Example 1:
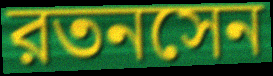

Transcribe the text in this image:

রতনসেন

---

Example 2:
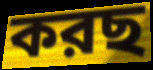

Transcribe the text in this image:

করছ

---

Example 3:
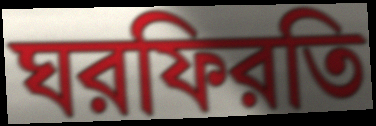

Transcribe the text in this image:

ঘরফিরতি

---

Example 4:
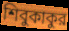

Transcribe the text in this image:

শিবুকাকুর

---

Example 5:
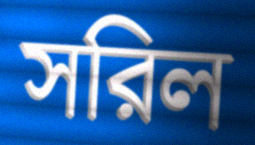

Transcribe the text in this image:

সরিল